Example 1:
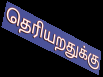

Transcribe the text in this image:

தெரியறதுக்கு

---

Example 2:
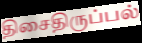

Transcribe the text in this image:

திசைதிருப்பல்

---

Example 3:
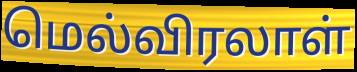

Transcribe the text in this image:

மெல்விரலாள்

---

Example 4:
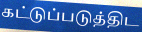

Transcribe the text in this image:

கட்டுப்படுத்திட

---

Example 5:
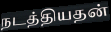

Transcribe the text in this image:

நடத்தியதன்